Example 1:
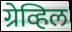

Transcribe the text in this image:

ग्रेव्हिल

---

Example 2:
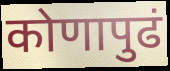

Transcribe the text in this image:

कोणापुढं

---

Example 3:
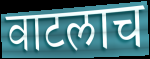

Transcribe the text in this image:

वाटलाच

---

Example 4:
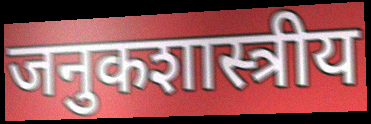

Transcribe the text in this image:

जनुकशास्त्रीय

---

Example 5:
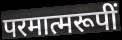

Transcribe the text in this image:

परमात्मरूपीं